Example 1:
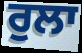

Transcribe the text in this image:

ਰੁਲਾ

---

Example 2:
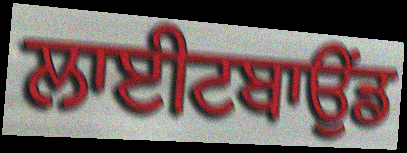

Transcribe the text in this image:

ਲਾਈਟਬਾਉਂਡ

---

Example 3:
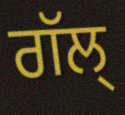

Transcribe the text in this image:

ਗੱਲ੍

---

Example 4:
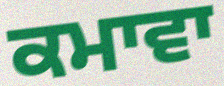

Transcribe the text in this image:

ਕਮਾਵਾ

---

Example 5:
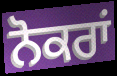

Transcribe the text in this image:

ਨੋਕਰਾਂ